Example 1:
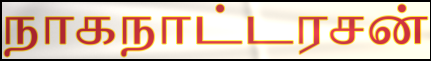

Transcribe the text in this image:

நாகநாட்டரசன்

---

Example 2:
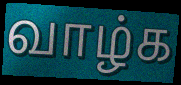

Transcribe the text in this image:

வாழ்க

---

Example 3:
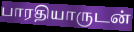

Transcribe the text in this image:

பாரதியாருடன்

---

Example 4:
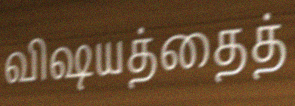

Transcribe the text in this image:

விஷயத்தைத்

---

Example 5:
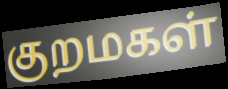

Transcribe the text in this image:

குறமகள்